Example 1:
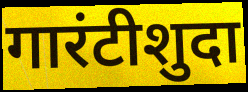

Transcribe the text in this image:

गारंटीशुदा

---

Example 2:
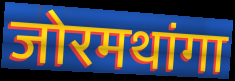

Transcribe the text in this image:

जोरमथांगा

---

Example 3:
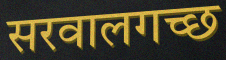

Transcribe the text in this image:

सरवालगच्छ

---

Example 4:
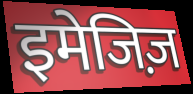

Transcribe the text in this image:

इमेजिज़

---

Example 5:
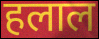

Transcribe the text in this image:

हलाल